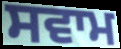
ਸਵਾਮ